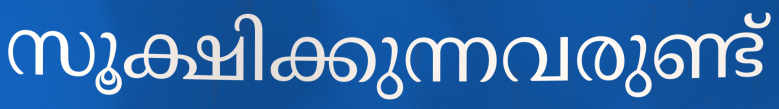
സൂക്ഷിക്കുന്നവരുണ്ട്